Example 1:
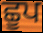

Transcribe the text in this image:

ਛੂਪ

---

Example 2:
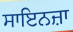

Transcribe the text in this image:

ਸਾਇਨਜ਼ਾ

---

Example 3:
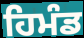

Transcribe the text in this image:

ਹਿਮੰਡ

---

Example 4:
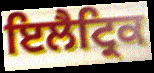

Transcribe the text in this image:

ਇਲੈਟ੍ਰਿਕ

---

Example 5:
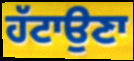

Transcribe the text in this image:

ਹੱਟਾਉਣਾ